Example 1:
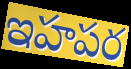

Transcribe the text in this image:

ఇహపర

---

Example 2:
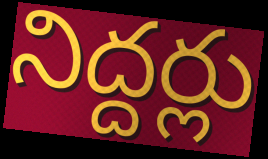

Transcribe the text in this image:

నిద్దర్లు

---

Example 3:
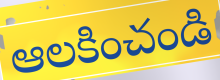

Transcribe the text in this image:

ఆలకించండి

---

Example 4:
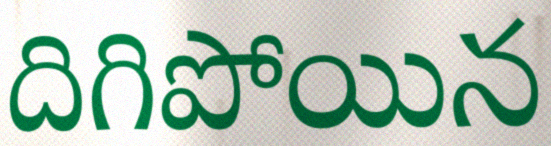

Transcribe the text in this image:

దిగిపోయిన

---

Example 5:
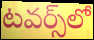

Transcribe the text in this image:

టవర్స్‌లో